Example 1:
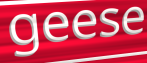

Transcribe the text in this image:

geese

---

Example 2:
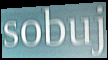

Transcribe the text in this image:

sobuj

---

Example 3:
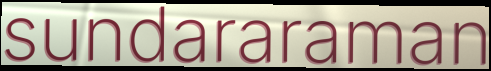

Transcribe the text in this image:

sundararaman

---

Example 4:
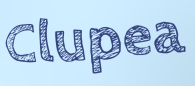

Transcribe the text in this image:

Clupea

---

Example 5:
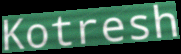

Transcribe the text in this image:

Kotresh